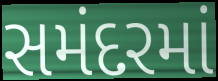
સમંદરમાં